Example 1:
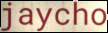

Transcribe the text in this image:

jaycho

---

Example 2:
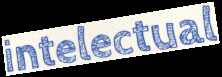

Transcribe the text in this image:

intelectual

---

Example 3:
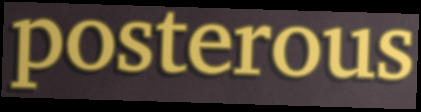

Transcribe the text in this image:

posterous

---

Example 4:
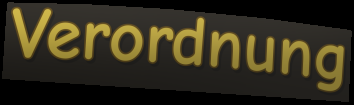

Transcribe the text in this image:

Verordnung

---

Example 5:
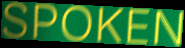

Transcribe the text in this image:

SPOKEN